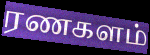
ரணகளம்